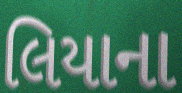
લિયાના